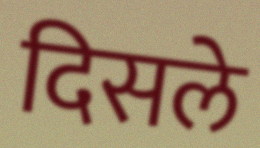
दिसले